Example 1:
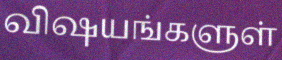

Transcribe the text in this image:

விஷயங்களுள்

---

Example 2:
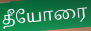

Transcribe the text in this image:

தீயோரை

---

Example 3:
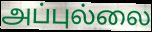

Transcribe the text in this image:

அப்புல்லை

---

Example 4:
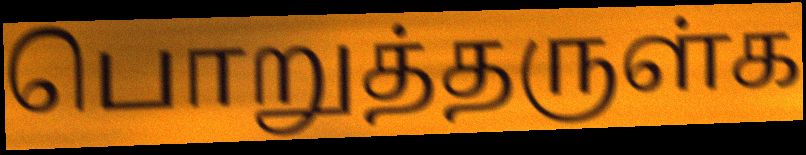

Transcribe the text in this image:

பொறுத்தருள்க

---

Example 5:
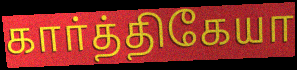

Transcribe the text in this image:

கார்த்திகேயா